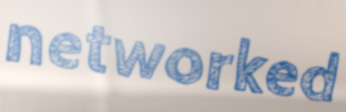
networked